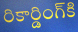
రికార్డింగ్‌కి